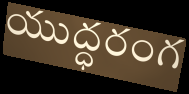
యుద్ధరంగ